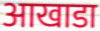
आखाडा